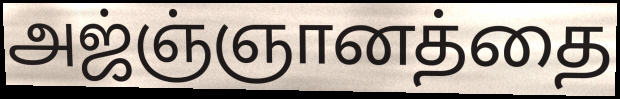
அஜ்ஞ்ஞானத்தை